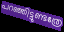
പറഞ്ഞിട്ടുണ്ടത്രേ